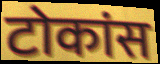
टोकांस